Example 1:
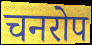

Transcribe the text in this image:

चनरोप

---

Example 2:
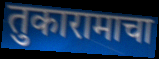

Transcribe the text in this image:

तुकारामाचा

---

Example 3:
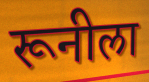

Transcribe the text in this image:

रूनीला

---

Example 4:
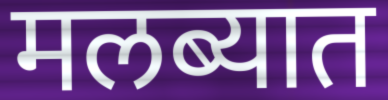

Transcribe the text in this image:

मलब्यात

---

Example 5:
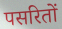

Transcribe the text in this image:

पसरितों